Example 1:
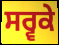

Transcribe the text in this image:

ਸਰ੍ਵਕੇ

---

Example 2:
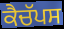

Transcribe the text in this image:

ਕੈਚੱਪਸ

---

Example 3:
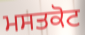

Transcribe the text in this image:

ਮਸਤਕੋਟ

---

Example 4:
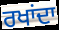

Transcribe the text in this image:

ਰਖਾਂਦਾ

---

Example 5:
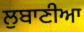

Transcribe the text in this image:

ਲੁਬਾਣੀਆ